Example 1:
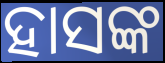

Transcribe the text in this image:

ହାସଙ୍କ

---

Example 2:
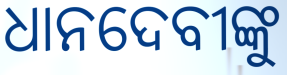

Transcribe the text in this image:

ଧାନଦେବୀଙ୍କୁ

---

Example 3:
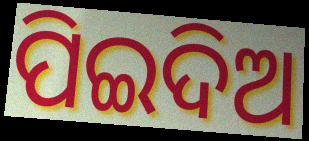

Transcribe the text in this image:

ପିଇଦିଅ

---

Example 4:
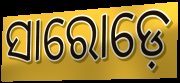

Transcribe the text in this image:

ସାରୋଡ଼େ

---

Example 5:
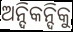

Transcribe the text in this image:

ଅନ୍ଦିକନ୍ଦିକୁ